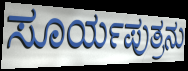
ಸೂರ್ಯಪುತ್ರನು